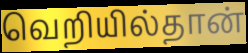
வெறியில்தான்